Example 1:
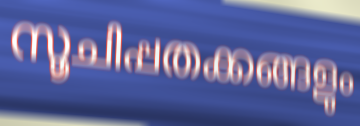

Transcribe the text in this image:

സൂചിപ്പതക്കങ്ങളും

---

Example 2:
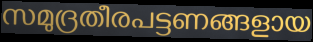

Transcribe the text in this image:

സമുദ്രതീരപട്ടണങ്ങളായ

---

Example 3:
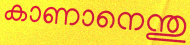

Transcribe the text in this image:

കാണാനെന്തു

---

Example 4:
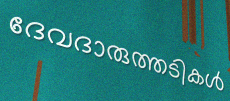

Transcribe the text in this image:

ദേവദാരുത്തടികൾ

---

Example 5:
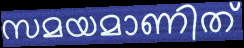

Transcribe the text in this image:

സമയമാണിത്